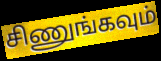
சிணுங்கவும்